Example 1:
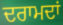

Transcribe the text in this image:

ਦਰਾਮਦਾਂ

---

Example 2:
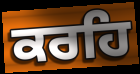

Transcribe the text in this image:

ਕਰਹਿ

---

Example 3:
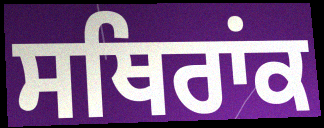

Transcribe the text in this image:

ਸਥਿਰਾਂਕ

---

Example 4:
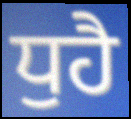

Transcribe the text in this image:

ਧੁਹੈ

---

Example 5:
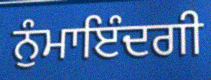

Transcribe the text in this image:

ਨੁੰਮਾਇੰਦਗੀ